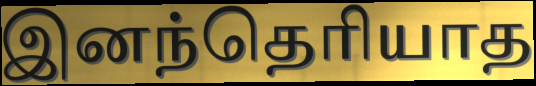
இனந்தெரியாத